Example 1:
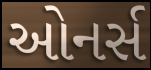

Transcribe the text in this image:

ઓનર્સ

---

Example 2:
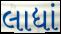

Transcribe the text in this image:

લાદ્યાં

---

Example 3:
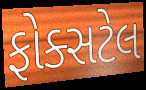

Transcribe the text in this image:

ફોક્સટેલ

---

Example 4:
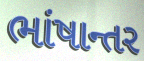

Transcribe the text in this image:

ભાંષાન્તર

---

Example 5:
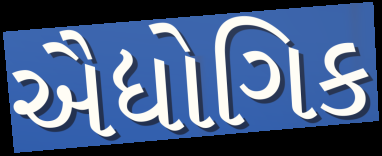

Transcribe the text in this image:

ઐદ્યોગિક